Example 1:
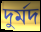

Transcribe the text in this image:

দুর্মদ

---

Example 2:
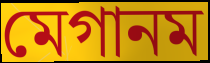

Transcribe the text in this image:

মেগানম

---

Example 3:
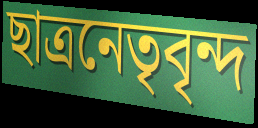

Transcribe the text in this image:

ছাত্রনেতৃবৃন্দ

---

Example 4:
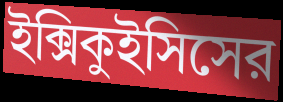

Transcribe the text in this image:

ইক্সিকুইসিসের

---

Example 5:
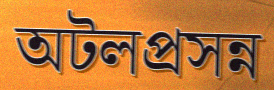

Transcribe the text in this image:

অটলপ্রসন্ন